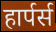
हार्पर्स